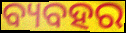
ବ୍ୟବହର